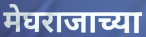
मेघराजाच्या